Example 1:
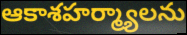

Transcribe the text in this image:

ఆకాశహర్మ్యాలను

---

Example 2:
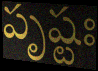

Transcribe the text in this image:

పృష్టః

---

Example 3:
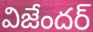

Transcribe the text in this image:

విజేందర్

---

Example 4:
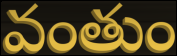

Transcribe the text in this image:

వంతుం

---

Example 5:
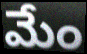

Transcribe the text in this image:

మేం